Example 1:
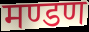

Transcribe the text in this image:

मण्डण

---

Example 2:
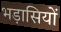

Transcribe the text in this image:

भड़ासियों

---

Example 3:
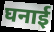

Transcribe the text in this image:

घनाई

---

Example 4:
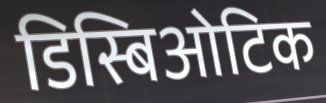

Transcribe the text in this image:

डिस्बिओटिक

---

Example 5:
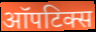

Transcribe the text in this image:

ऑपटिक्स